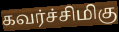
கவர்ச்சிமிகு